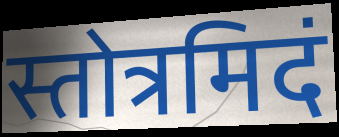
स्तोत्रमिदं